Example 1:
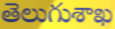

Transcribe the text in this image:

తెలుగుశాఖ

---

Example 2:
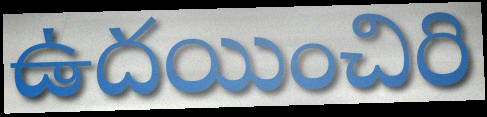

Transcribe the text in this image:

ఉదయించిరి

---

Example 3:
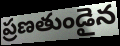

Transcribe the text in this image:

ప్రణతుండైన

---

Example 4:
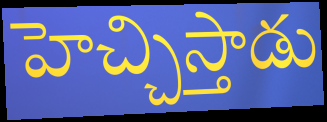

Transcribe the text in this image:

హెచ్చిస్తాడు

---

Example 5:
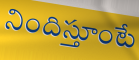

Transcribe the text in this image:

నిందిస్తూంటే